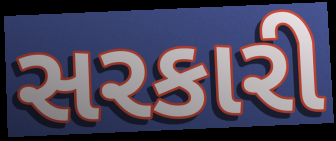
સરકારી